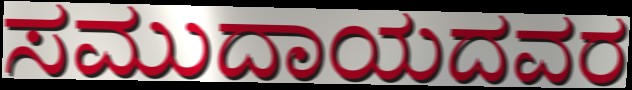
ಸಮುದಾಯದವರ